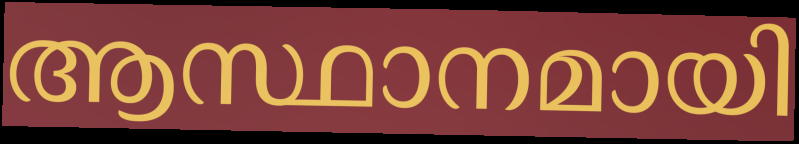
ആസ്ഥാനമായി